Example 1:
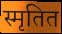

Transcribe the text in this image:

स्मृतित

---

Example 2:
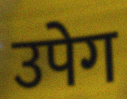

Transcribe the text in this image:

उपेग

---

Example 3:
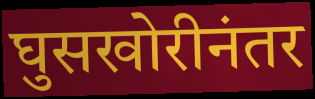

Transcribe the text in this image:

घुसखोरीनंतर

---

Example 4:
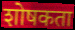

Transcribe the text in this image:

शोषकता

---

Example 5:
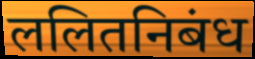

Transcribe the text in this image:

ललितनिबंध